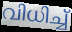
വിധിച്ച്